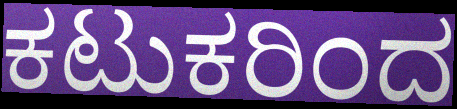
ಕಟುಕರಿಂದ